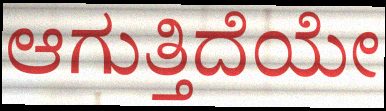
ಆಗುತ್ತಿದೆಯೇ